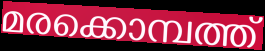
മരക്കൊമ്പത്ത്